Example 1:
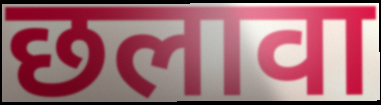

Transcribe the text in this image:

छलावा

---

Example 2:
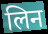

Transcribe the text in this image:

लिन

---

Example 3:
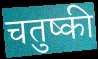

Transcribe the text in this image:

चतुष्की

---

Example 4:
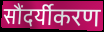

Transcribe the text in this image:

सौंदर्यीकरण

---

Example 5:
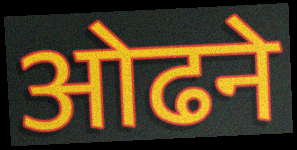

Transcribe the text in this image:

ओढने